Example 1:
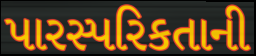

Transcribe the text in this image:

પારસ્પરિકતાની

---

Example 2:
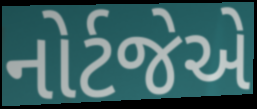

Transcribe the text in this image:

નોર્ટજેએ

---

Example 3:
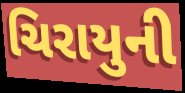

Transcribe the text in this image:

ચિરાયુની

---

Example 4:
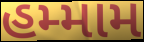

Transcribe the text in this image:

હમ્મામ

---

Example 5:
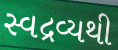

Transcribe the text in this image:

સ્વદ્રવ્યથી